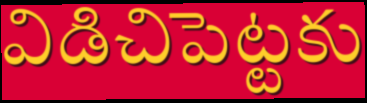
విడిచిపెట్టకు